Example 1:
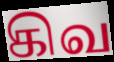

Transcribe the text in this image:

கிவ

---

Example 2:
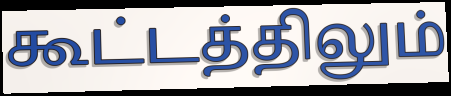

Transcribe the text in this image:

கூட்டத்திலும்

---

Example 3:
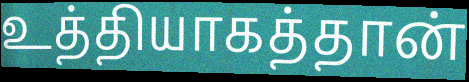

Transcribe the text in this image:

உத்தியாகத்தான்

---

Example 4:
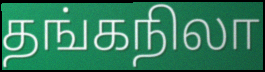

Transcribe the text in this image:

தங்கநிலா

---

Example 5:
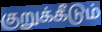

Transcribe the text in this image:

குறுக்கீடும்